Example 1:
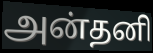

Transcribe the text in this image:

அன்தனி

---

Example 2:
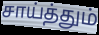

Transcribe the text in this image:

சாய்த்தும்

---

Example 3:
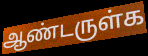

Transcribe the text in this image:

ஆண்டருள்க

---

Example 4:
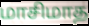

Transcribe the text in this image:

மாசிமாத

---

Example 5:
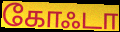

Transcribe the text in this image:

கோஃடா